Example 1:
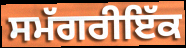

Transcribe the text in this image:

ਸਮੱਗਰੀਇੱਕ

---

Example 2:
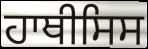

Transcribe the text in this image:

ਹਾਥੀਸਿਸ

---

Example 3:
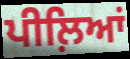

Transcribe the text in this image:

ਪੀਲ਼ਿਆਂ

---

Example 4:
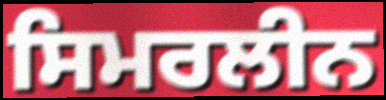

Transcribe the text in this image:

ਸਿਮਰਲੀਨ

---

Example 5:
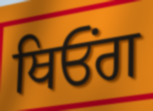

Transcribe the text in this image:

ਥਿਓਂਗ